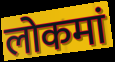
लोकमां